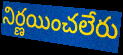
నిర్ణయించలేరు